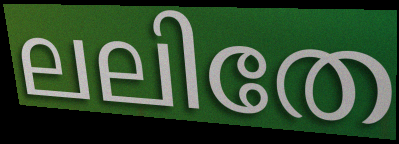
ലലിതേ